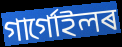
গাৰ্গোইলৰ